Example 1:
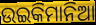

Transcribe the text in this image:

ଉଇକିମାନିଆ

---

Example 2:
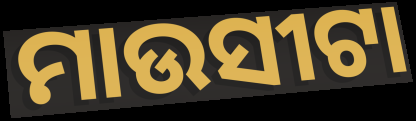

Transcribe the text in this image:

ମାଉସୀଟା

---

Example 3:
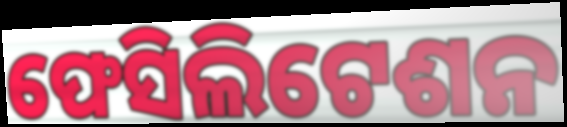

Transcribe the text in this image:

ଫେସିଲିଟେଶନ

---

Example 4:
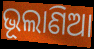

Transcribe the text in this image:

ଭୂଲାଣିଆ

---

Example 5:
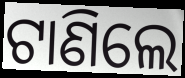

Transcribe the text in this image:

ଟାଣିଲେ